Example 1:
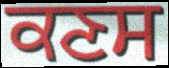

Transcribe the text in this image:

ਕਣਸ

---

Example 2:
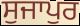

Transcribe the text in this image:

ਸੁਜਾਪੁਰ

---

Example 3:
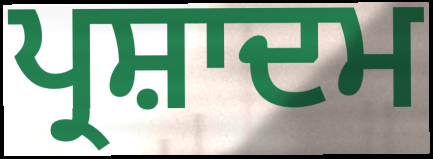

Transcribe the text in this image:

ਪ੍ਰਸ਼ਾਦਮ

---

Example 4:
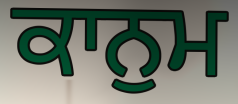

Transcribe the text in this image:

ਕਾਨੁਮ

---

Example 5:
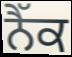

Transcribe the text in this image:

ਨੈੱਕ